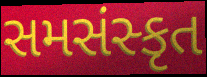
સમસંસ્કૃત